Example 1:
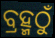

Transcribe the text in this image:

ବ୍ରହ୍ମଠୁଁ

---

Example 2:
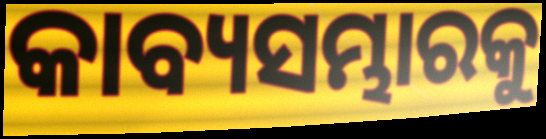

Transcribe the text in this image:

କାବ୍ୟସମ୍ଭାରକୁ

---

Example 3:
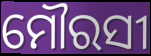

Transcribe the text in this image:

ମୌରସୀ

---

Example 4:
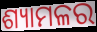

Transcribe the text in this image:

ଶ୍ୟାମଳର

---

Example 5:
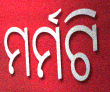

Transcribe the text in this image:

ମର୍ମଟି